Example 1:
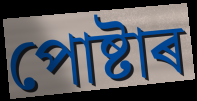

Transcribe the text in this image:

পোষ্টাৰ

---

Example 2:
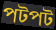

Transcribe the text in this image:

পটপট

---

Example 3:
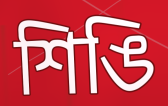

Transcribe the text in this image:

শিঙি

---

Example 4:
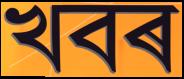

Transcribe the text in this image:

খবৰ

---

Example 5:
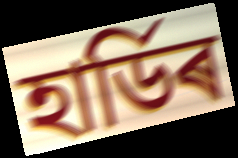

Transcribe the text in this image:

হাৰ্ডিৰ